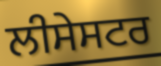
ਲੀਸੇਸਟਰ